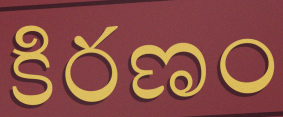
కిరణం